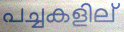
പച്ചകളില്